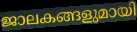
ജാലകങ്ങളുമായി